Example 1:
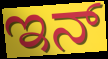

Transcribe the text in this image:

ಇನ್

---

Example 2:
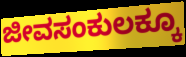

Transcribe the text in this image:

ಜೀವಸಂಕುಲಕ್ಕೂ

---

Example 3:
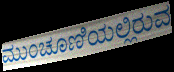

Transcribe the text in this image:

ಮುಂಚೂಣಿಯಲ್ಲಿರುವ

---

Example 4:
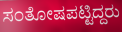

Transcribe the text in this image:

ಸಂತೋಷಪಟ್ಟಿದ್ದರು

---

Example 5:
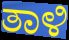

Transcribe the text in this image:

ತಾಳಿ